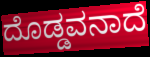
ದೊಡ್ಡವನಾದೆ